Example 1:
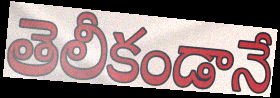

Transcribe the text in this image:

తెలీకండానే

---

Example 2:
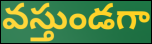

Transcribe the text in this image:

వస్తుండగా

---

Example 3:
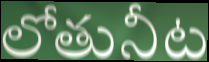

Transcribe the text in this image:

లోతునీట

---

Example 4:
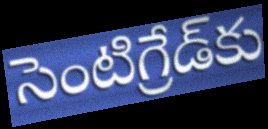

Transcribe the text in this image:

సెంటిగ్రేడ్‌కు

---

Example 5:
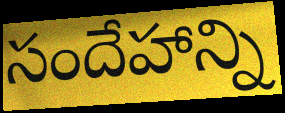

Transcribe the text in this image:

సందేహాన్ని